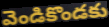
వెండికొండకు